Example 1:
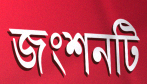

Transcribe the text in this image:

জংশনটি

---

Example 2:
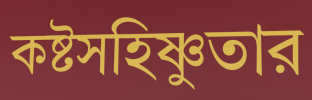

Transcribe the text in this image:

কষ্টসহিষ্ণুতার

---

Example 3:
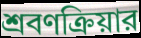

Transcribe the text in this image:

শ্রবণক্রিয়ার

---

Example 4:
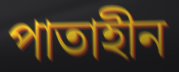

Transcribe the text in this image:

পাতাহীন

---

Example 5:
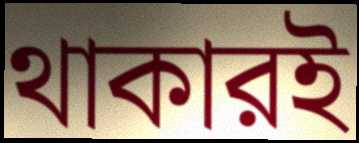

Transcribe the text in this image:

থাকারই